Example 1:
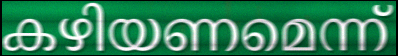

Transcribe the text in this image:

കഴിയണമെന്ന്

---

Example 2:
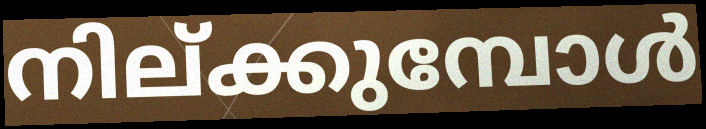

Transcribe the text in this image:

നില്ക്കുമ്പോൾ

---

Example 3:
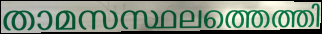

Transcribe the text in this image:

താമസസ്ഥലത്തെത്തി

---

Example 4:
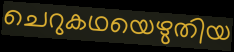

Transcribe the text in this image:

ചെറുകഥയെഴുതിയ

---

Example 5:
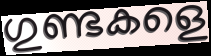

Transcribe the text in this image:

ഗുണ്ടകളെ